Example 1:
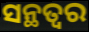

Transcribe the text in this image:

ସନ୍ଥତ୍ବର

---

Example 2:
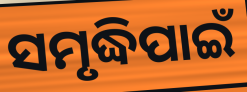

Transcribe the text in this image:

ସମୃଦ୍ଧିପାଇଁ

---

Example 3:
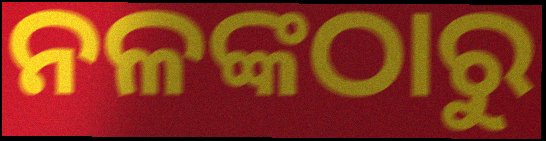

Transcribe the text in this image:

ନଳଙ୍କଠାରୁ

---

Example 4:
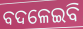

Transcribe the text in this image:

ବଦଳେଇବି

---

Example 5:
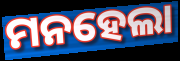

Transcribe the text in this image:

ମନହେଲା